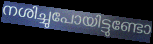
നശിച്ചുപോയിട്ടുണ്ടോ